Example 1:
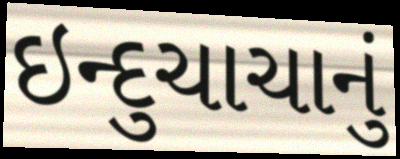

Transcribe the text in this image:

ઇન્દુચાચાનું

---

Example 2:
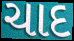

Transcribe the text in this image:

ચાદ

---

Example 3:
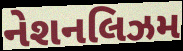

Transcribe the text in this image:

નેશનલિઝમ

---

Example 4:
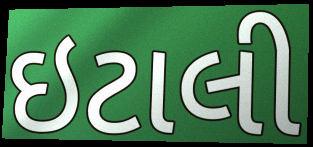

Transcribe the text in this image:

ઇટાલી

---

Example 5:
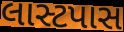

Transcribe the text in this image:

લાસ્ટપાસ